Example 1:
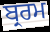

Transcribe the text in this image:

ਬ੍ਰਰਮ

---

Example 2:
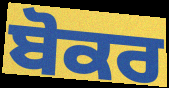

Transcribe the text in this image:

ਬੋਕਰ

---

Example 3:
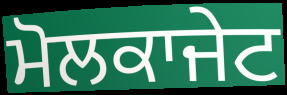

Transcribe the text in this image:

ਮੋਲਕਾਜੇਟ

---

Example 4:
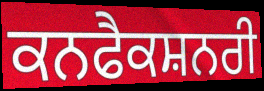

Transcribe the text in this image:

ਕਨਫੈਕਸ਼ਨਰੀ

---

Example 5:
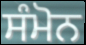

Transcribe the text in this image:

ਸੰਮੋਨ